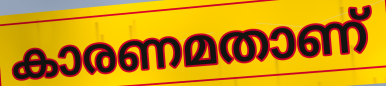
കാരണമതാണ്